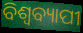
ବିଶ୍ଵବ୍ୟାପୀ